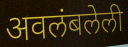
अवलंबलेली